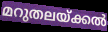
മറുതലയ്ക്കൽ